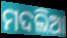
ମଦଲିଆ